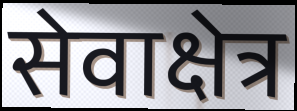
सेवाक्षेत्र